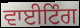
ਵਾਈਟਿੰਗ